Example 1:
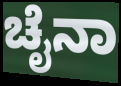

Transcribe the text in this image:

ಚೈನಾ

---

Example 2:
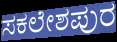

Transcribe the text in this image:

ಸಕಲೇಶಪುರ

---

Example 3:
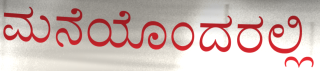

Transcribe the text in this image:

ಮನೆಯೊಂದರಲ್ಲಿ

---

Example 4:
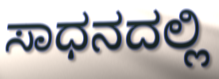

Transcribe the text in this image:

ಸಾಧನದಲ್ಲಿ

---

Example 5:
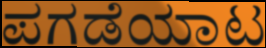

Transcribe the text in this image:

ಪಗಡೆಯಾಟ